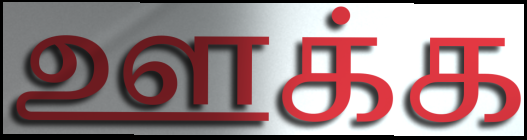
ஊக்க